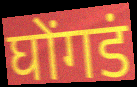
घोंगडं